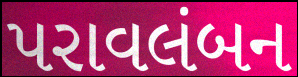
પરાવલંબન